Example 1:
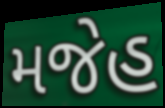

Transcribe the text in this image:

મજેહ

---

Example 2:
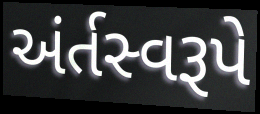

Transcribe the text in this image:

અંર્તસ્વરૂપે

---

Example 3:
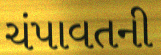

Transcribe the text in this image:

ચંપાવતની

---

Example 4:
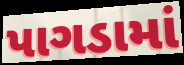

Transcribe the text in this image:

પાગડામાં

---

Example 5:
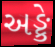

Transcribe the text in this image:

અઙ્કે